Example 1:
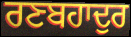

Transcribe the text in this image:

ਰਣਬਹਾਦੁਰ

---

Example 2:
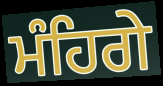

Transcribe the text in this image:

ਮੰਹਿਗੇ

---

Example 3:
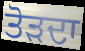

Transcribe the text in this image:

ਤੋੜਦਾ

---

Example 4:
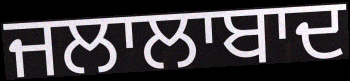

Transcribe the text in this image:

ਜਲਾਲਾਬਾਦ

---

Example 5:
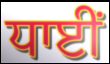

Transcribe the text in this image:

ਧਾਈਂ